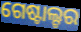
ଗେଷ୍ଟାଲ୍ଟର